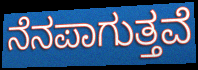
ನೆನಪಾಗುತ್ತವೆ